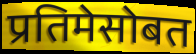
प्रतिमेसोबत